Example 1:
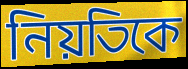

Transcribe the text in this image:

নিয়তিকে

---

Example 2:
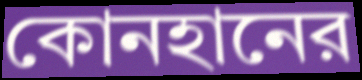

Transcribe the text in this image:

কোনহানের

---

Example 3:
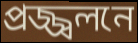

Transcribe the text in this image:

প্রজ্জ্বলনে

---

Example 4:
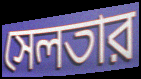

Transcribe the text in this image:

সেলতার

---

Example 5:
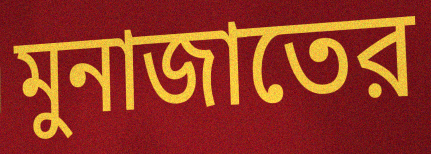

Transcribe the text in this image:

মুনাজাতের